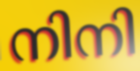
നിനി